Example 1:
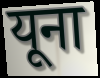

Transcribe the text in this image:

यूना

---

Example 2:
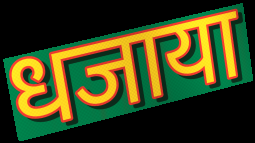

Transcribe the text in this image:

धजाया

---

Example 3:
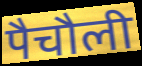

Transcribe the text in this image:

पैचौली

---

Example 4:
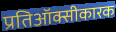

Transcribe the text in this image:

प्रतिऑक्सीकारक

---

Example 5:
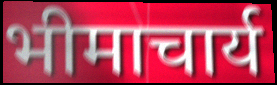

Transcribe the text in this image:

भीमाचार्य